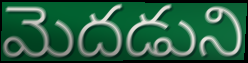
మెదడుని